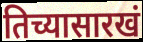
तिच्यासारखं